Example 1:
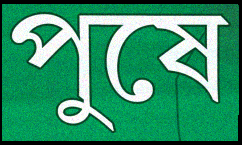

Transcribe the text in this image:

পুষে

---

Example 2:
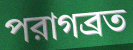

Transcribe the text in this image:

পরাগব্রত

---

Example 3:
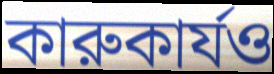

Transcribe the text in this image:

কারুকার্যও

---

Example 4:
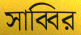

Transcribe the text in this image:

সাব্বির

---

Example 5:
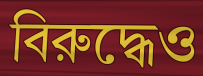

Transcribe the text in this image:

বিরুদ্ধেও